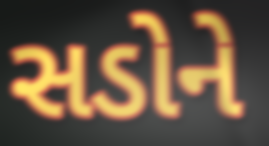
સડોને